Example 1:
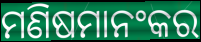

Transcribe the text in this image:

ମଣିଷମାନଂକର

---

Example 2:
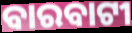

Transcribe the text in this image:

ବାରବାଟୀ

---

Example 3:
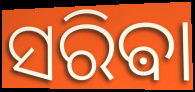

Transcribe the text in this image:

ସରିଵା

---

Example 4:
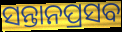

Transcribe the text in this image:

ସନ୍ତାନପ୍ରସବ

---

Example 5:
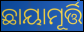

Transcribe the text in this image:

ଛାୟାମୂର୍ତ୍ତି